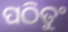
ପଠିତୁଂ